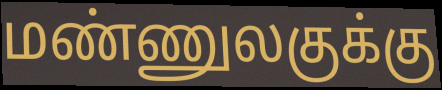
மண்ணுலகுக்கு